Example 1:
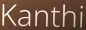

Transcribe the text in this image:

Kanthi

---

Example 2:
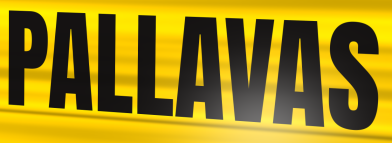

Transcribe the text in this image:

PALLAVAS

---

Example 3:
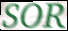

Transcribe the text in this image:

SOR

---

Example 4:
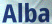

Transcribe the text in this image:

Alba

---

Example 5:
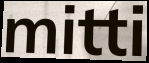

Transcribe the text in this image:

mitti